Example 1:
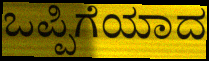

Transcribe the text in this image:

ಒಪ್ಪಿಗೆಯಾದ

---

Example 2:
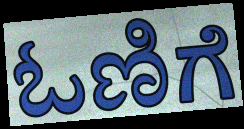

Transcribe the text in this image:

ಓಣಿಗೆ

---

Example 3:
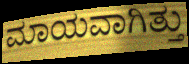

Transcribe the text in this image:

ಮಾಯವಾಗಿತ್ತು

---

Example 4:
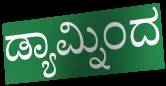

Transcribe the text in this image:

ಡ್ಯಾಮ್ನಿಂದ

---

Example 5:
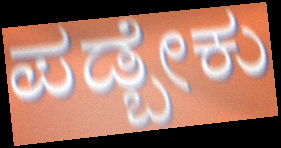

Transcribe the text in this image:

ಪಡ್ಬೇಕು